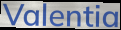
Valentia